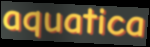
aquatica